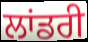
ਲਾਂਡਰੀ